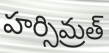
హర్సిమ్రత్